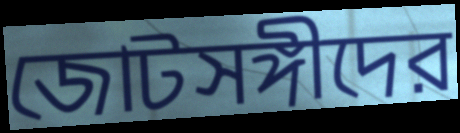
জোটসঙ্গীদের